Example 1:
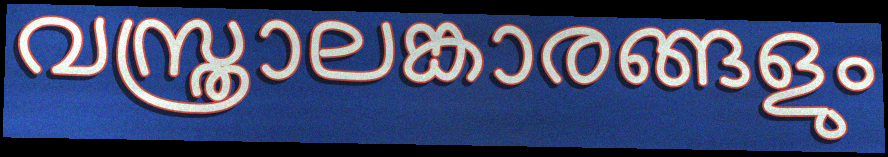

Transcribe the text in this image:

വസ്ത്രാലങ്കാരങ്ങളും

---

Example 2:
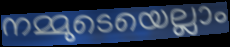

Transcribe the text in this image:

നമ്മുടെയെല്ലാം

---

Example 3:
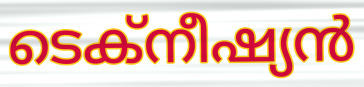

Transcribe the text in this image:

ടെക്നീഷ്യൻ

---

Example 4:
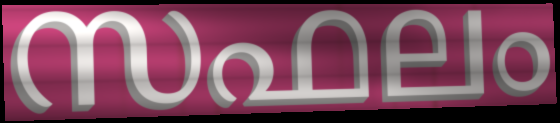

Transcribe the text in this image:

സഫലം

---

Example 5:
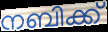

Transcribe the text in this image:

നബിക്ക്